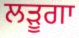
ਲੜੂਗਾ